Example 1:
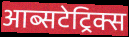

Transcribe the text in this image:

आब्सटेट्रिक्स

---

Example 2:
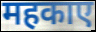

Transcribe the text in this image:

महकाए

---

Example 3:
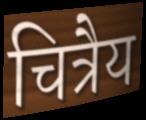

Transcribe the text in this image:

चित्रैय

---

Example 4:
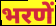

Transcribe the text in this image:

भरणें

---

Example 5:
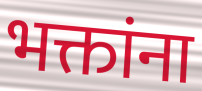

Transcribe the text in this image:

भक्तांना